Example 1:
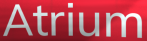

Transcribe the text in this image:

Atrium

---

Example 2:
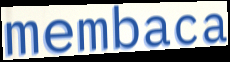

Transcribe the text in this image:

membaca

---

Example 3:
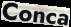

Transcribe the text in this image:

Conca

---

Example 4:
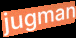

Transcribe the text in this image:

jugman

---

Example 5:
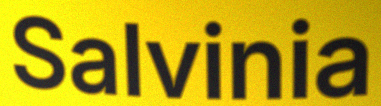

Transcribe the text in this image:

Salvinia